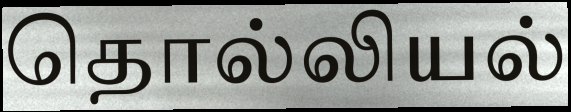
தொல்லியல்